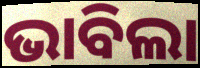
ଭାବିଲା